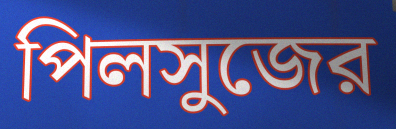
পিলসুজের